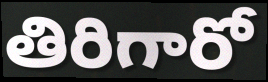
తిరిగారో